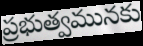
ప్రభుత్వమునకు